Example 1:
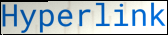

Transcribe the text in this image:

Hyperlink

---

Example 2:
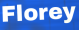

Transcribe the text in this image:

Florey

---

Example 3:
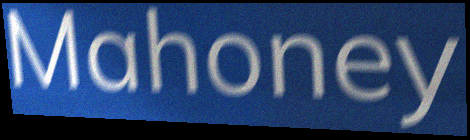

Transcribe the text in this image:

Mahoney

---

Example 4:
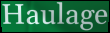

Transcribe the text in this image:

Haulage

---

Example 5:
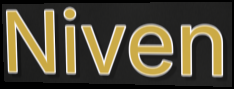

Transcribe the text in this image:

Niven